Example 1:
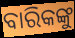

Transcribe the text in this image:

ବାରିକଙ୍କୁ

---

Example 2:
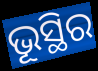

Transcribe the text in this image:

ଭୂସ୍ଥିର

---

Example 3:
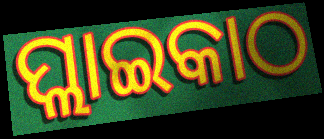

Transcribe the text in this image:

ପ୍ଲାଇକାଠ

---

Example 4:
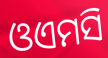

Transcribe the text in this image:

ଓଏମସି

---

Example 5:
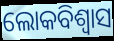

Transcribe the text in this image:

ଲୋକବିଶ୍ୱାସ